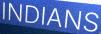
INDIANS